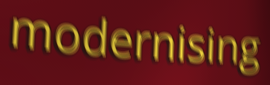
modernising